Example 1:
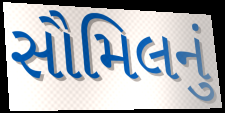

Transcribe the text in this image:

સૌમિલનું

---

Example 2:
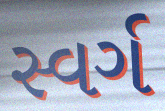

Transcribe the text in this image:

સ્વર્ગ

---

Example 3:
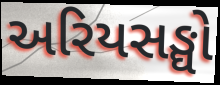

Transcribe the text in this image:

અરિયસઙ્ઘો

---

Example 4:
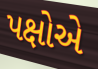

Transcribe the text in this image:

પક્ષોએ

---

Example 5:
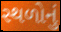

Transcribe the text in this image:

સ્થળોનું